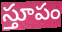
స్తూపం